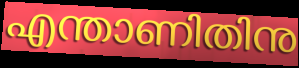
എന്താണിതിനു